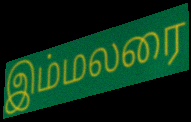
இம்மலரை